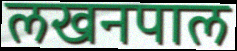
लखनपाल